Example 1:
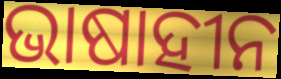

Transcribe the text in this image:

ଭାଷାହୀନ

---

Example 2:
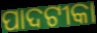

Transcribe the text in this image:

ପାଦଟୀକା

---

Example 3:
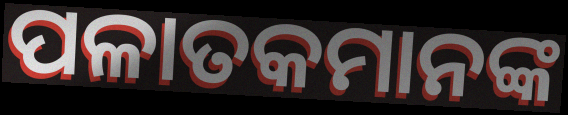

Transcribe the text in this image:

ପଳାତକମାନଙ୍କ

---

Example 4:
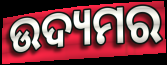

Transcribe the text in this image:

ଉଦ୍ୟମର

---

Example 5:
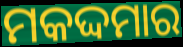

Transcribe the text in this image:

ମକଦ୍ଦମାର